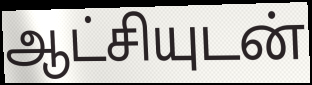
ஆட்சியுடன்